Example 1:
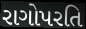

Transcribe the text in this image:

રાગોપરતિ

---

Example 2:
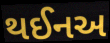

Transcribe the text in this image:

થઈનઅ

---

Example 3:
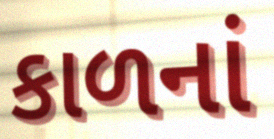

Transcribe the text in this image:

કાળનાં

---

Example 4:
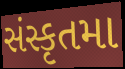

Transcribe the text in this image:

સંસ્કૃતમા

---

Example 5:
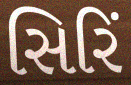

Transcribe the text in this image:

સિરિં